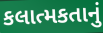
કલાત્મકતાનું